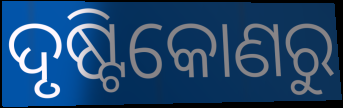
ଦୃଷ୍ଟିକୋଣରୁ